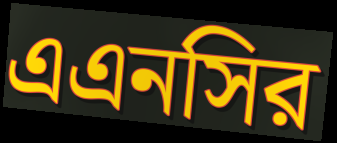
এএনসির